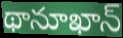
థానూఖాన్